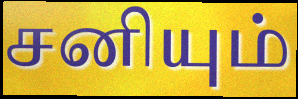
சனியும்